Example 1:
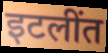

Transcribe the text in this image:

इटलींत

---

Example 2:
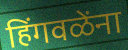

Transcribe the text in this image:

हिंगवळेंना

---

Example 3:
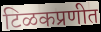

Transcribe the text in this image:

टिळकप्रणीत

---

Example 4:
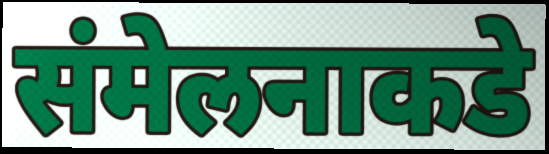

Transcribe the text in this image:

संमेलनाकडे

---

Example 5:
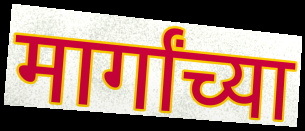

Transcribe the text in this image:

मार्गांच्या